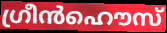
ഗ്രീൻഹൌസ്